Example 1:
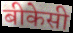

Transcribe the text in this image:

बीकेसी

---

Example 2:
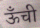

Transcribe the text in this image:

ऊँची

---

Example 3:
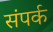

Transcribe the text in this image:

संपर्क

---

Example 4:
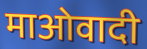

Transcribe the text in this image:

माओवादी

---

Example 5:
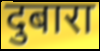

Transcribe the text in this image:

दुबारा